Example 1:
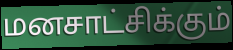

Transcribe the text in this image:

மனசாட்சிக்கும்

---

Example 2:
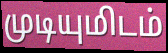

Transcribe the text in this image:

முடியுமிடம்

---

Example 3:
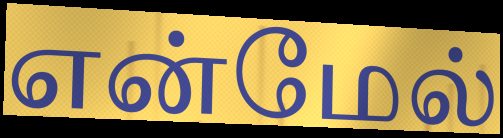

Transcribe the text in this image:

என்மேல்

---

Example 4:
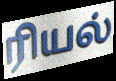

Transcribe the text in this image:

ரியல்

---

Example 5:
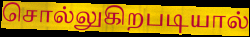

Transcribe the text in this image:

சொல்லுகிறபடியால்